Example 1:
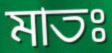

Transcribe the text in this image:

মাতঃ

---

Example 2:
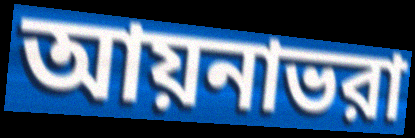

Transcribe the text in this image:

আয়নাভরা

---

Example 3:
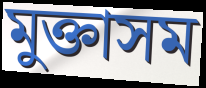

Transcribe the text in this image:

মুক্তাসম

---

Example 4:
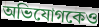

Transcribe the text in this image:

অভিযোগকেও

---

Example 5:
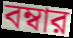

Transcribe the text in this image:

বম্বার